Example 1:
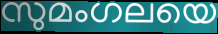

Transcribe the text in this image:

സുമംഗലയെ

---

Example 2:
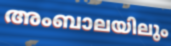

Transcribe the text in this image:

അംബാലയിലും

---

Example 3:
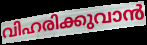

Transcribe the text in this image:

വിഹരിക്കുവാൻ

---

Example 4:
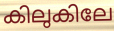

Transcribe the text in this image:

കിലുകിലേ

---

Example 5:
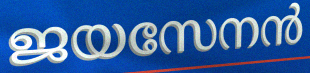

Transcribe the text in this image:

ജയസേനൻ